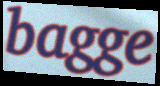
bagge